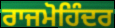
ਰਾਜਮੋਹਿੰਦਰ